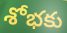
శోభకు